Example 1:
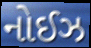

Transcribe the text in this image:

નોઈઝ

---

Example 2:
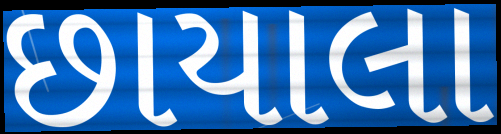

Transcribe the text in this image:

છાયાલા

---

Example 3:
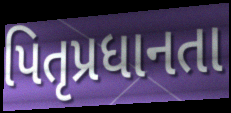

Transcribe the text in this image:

પિતૃપ્રધાનતા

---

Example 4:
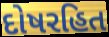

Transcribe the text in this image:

દોષરહિત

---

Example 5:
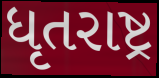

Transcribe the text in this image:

ધૃતરાષ્ટ્ર